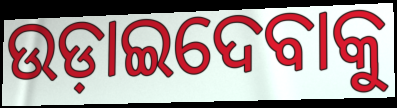
ଉଡ଼ାଇଦେବାକୁ